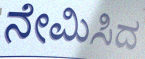
ನೇಮಿಸಿದ